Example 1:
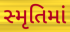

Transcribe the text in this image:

સ્મૃતિમાં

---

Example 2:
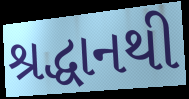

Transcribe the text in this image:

શ્રદ્ધાનથી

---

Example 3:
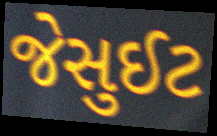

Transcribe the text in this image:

જેસુઈટ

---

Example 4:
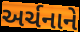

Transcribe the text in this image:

અર્ચનાને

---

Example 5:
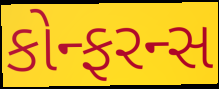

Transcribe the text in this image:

કોન્ફરન્સ